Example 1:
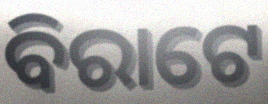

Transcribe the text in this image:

ବିରାଟେ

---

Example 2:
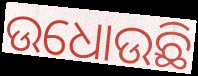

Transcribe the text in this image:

ଉଧୋଉଛି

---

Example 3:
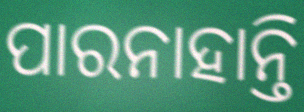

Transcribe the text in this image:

ପାରନାହାନ୍ତି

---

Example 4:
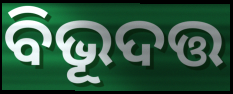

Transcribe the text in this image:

ବିଭୂଦତ୍ତ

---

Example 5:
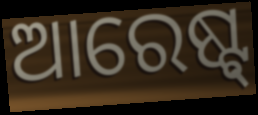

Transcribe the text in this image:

ଆରେଷ୍ଟ୍